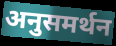
अनुसमर्थन